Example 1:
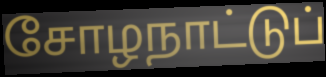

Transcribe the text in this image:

சோழநாட்டுப்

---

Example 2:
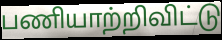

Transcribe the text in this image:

பணியாற்றிவிட்டு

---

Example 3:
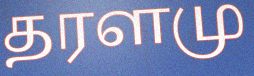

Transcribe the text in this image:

தரளமு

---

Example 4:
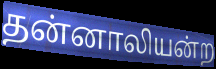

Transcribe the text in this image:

தன்னாலியன்ற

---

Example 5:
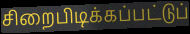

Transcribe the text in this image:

சிறைபிடிக்கப்பட்டுப்